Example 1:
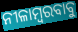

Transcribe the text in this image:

ନୀଳାମ୍ବରବାବୁ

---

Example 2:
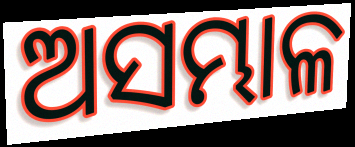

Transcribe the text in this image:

ଅସମ୍ଭାଳ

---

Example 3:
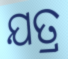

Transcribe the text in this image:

ଯତ୍ର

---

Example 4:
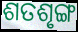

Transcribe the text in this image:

ଶତଶୃଙ୍ଗ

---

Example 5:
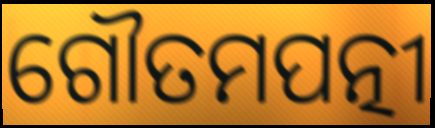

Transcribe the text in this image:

ଗୌତମପତ୍ନୀ